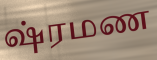
ஷ்ரமண